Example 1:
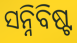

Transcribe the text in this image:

ସନ୍ନିବିଷ୍ଟ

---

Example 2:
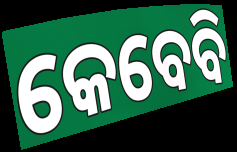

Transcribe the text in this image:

କେବେବି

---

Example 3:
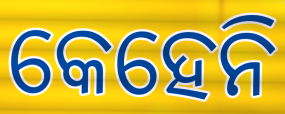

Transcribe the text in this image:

କେହେନି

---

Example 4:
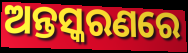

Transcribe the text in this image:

ଅନ୍ତସ୍କରଣରେ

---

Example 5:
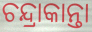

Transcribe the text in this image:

ଚନ୍ଦ୍ରାକାନ୍ତା